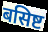
बसिष्ट